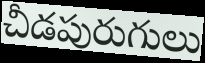
చీడపురుగులు